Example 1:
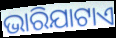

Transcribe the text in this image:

ଭାରିଯାଟାଏ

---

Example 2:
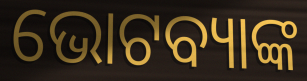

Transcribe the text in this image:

ଭୋଟବ୍ୟାଙ୍କ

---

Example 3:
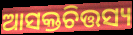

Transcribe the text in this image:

ଆସକ୍ତଚିତ୍ତସ୍ୟ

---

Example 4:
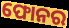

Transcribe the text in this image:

ଫୋନର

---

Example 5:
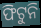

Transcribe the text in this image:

ଫିଟୁନି